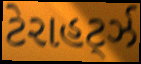
ટેરાહર્ટ્ઝ